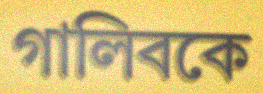
গালিবকে